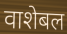
वाशेबल